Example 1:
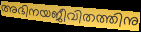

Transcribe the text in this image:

അഭിനയജീവിതത്തിനു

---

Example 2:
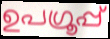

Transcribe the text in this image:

ഉപഗ്രൂപ്പ്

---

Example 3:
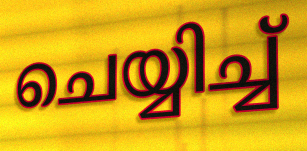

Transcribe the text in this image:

ചെയ്യിച്ച്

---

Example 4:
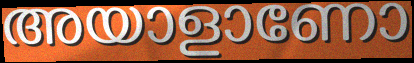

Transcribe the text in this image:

അയാളാണോ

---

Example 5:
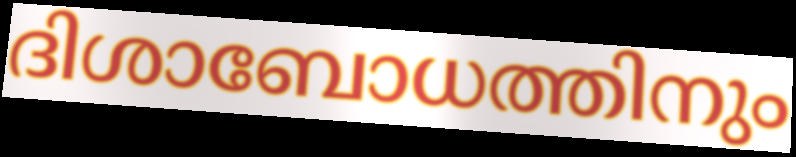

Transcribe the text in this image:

ദിശാബോധത്തിനും